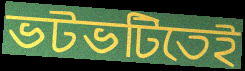
ভটভটিতেই